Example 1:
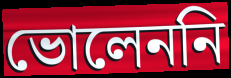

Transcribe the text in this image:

ভোলেননি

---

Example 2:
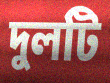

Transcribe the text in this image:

দুলটি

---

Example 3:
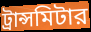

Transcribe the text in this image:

ট্রান্সমিটার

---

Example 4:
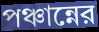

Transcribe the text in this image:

পঞ্চান্নের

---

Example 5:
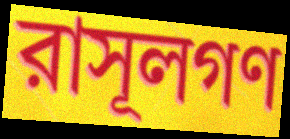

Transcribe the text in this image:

রাসূলগণ